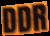
DDR